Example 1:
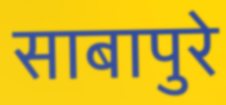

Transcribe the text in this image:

साबापुरे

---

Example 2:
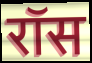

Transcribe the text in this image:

रॉस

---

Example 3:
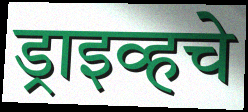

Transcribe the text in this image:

ड्राइव्हचे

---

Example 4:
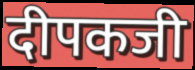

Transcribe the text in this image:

दीपकजी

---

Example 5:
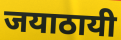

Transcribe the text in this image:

जयाठायी